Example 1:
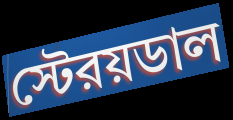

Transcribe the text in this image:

স্টেরয়ডাল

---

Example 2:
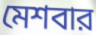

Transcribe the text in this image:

মেশবার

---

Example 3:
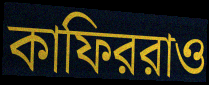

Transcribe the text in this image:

কাফিররাও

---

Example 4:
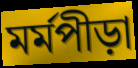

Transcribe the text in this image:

মর্মপীড়া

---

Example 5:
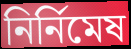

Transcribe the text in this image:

নির্নিমেষ